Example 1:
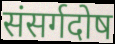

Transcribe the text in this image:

संसर्गदोष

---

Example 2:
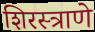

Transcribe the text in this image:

शिरस्त्राणे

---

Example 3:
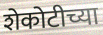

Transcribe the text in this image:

शेकोटीच्या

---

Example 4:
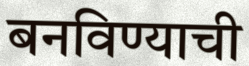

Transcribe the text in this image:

बनविण्याची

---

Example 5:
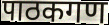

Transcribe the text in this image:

पाठकगण